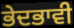
ਭੇਦਭਾਵੀ